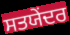
ਸਤਯੇਂਦਰ